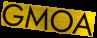
GMOA